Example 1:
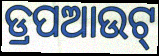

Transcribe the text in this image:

ଡ୍ରପଆଉଟ୍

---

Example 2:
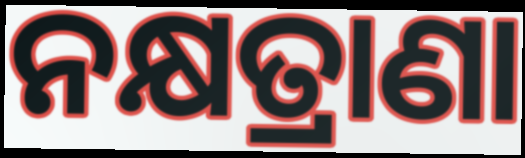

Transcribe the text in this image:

ନକ୍ଷତ୍ରାଣା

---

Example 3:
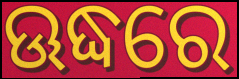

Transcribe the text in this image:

ଊଦ୍ଧରେ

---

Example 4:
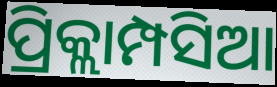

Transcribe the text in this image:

ପ୍ରିକ୍ଲାମ୍ପସିଆ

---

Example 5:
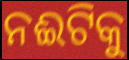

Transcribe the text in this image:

ନଈଟିକୁ